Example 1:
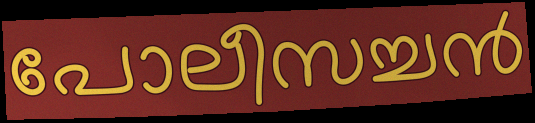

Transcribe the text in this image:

പോലീസച്ചൻ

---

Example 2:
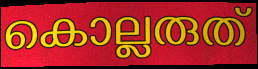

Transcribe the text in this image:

കൊല്ലരുത്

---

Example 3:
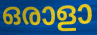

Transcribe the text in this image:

ഒരാളാ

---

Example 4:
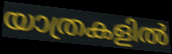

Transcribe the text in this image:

യാത്രകളിൽ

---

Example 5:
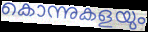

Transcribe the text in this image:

കൊന്നുകളയും